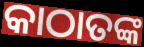
କାଠାତଙ୍କ